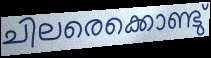
ചിലരെക്കൊണ്ടു്